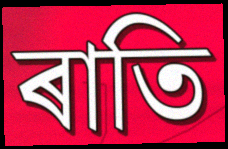
ৰাতি